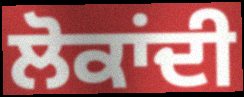
ਲੋਕਾਂਦੀ